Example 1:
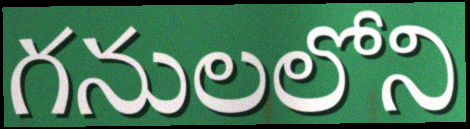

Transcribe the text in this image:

గనులలోని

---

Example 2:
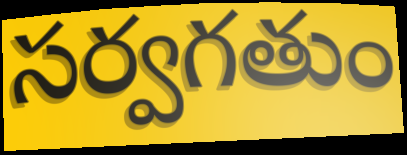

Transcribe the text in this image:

సర్వగతుం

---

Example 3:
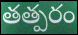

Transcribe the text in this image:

తత్పరం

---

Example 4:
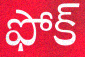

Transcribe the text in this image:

ఫోక్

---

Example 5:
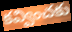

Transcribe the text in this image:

కవ్వించకు